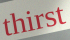
thirst